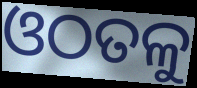
ଓଠତଳୁ